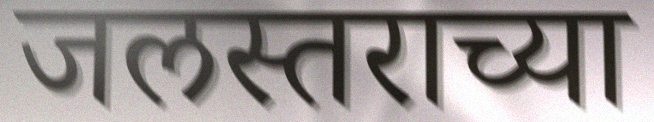
जलस्तराच्या